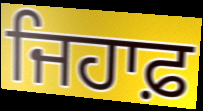
ਜਿਹਾਫ਼